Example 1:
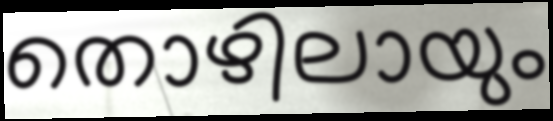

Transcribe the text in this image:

തൊഴിലായും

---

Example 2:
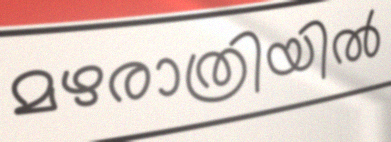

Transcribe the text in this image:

മഴരാത്രിയിൽ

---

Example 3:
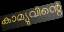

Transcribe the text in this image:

കാമ്യുവിന്റെ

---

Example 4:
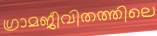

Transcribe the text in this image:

ഗ്രാമജീവിതത്തിലെ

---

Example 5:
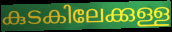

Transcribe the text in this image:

കുടകിലേക്കുള്ള